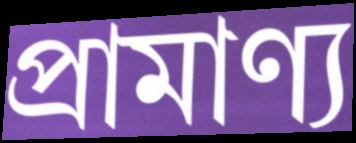
প্রামাণ্য